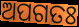
ଅପଗତଃ